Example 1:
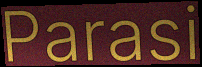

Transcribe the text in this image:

Parasi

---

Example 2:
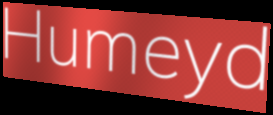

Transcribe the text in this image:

Humeyd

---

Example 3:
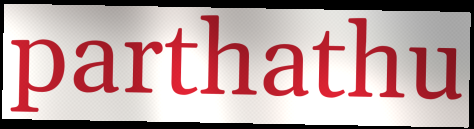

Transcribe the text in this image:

parthathu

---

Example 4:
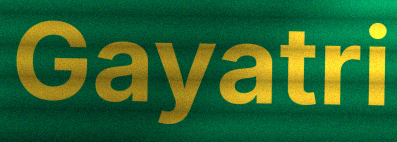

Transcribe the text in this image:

Gayatri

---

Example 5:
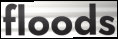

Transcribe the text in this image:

floods